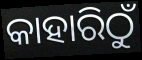
କାହାରିଠୁଁ